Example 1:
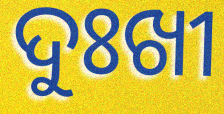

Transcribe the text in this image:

ଦୁଃଖୀ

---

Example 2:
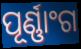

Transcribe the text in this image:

ପୂର୍ଣ୍ଣାଂଗ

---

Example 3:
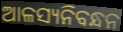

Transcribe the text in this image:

ଆଳସ୍ୟନିବନ୍ଧନ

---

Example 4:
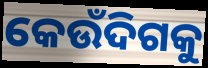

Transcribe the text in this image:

କେଉଁଦିଗକୁ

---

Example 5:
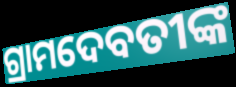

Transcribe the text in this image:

ଗ୍ରାମଦେବତୀଙ୍କ